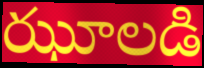
ఝూలడి